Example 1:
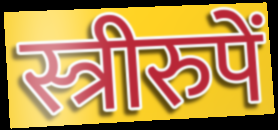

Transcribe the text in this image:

स्त्रीरुपें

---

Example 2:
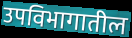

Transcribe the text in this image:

उपविभागातील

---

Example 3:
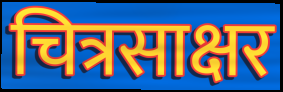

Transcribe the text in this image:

चित्रसाक्षर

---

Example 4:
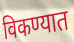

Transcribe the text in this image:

विकण्यात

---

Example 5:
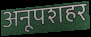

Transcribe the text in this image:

अनूपशहर